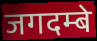
जगदम्बे